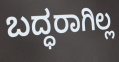
ಬದ್ಧರಾಗಿಲ್ಲ